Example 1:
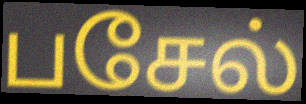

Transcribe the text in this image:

பசேல்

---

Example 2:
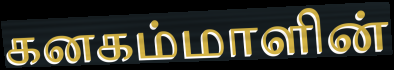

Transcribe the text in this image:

கனகம்மாளின்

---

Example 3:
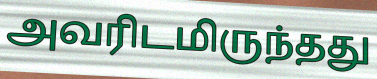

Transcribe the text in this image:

அவரிடமிருந்தது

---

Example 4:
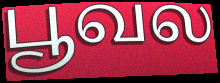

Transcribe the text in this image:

பூவல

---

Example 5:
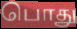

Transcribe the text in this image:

பொது